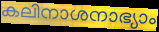
കലിനാശനാഭ്യാം